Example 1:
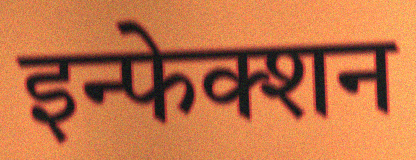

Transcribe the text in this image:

इन्‍फेक्‍शन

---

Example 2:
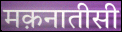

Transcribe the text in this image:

मक़नातीसी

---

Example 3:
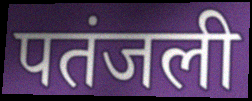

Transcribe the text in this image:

पतंजली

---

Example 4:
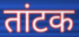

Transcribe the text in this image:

तांटक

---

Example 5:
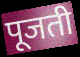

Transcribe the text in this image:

पूजती